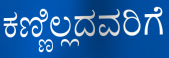
ಕಣ್ಣಿಲ್ಲದವರಿಗೆ